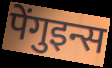
पेंगुइन्स